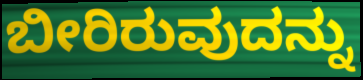
ಬೀರಿರುವುದನ್ನು